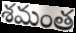
శమంత